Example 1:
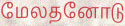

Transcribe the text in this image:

மேலதனோடு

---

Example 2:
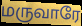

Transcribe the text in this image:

மருவாரே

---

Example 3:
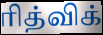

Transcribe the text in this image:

ரித்விக்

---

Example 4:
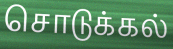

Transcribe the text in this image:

சொடுக்கல்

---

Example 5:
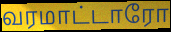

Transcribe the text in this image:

வரமாட்டாரோ